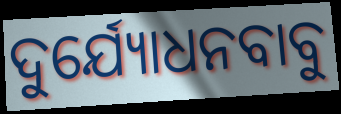
ଦୁର୍ଯ୍ୟୋଧନବାବୁ